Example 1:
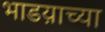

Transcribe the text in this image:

भाडय़ाच्या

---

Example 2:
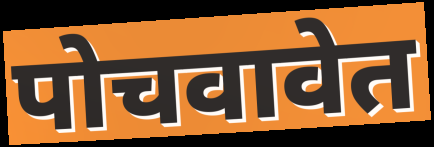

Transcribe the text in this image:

पोचवावेत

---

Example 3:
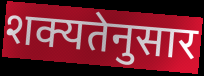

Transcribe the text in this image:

शक्यतेनुसार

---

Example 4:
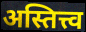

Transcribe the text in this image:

अस्तित्त्व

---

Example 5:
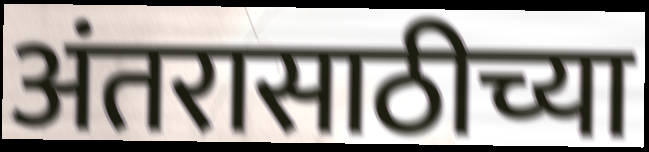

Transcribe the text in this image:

अंतरासाठीच्या